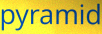
pyramid